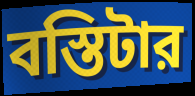
বস্তিটার